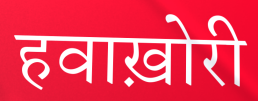
हवाख़ोरी